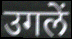
उगलें